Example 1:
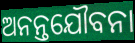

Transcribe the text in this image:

ଅନନ୍ତଯୌବନା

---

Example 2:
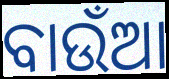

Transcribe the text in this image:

ବାଉଁଆ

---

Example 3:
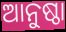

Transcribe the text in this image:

ଆନୁଷ୍ଠା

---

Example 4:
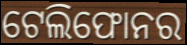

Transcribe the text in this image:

ଟେଲିଫୋନର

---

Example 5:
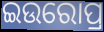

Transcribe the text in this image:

ଇଉରୋପ୍ର